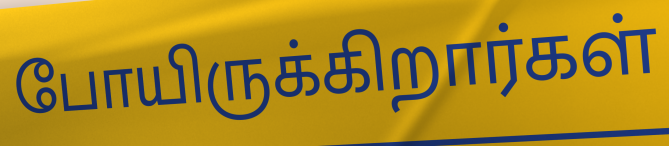
போயிருக்கிறார்கள்